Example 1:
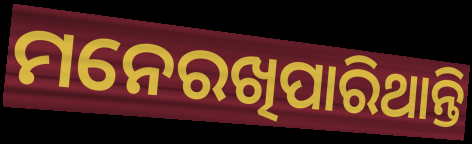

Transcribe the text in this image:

ମନେରଖିପାରିଥାନ୍ତି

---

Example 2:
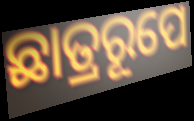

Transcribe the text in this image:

ଛାତ୍ରରୂପେ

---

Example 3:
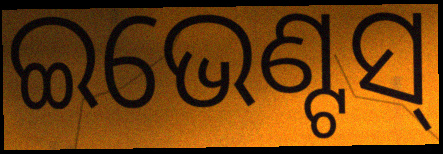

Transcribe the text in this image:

ଇଭେଣ୍ଟସ୍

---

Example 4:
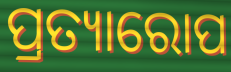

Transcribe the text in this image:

ପ୍ରତ୍ୟାରୋପ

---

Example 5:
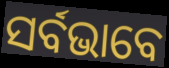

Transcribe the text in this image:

ସର୍ବଭାବେ